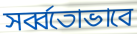
সর্ব্বতোভাবে